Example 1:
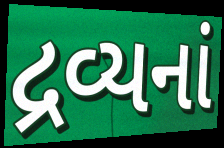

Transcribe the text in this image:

દ્રવ્યનાં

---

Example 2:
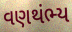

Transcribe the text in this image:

વણથંભ્ય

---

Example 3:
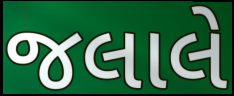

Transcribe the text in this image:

જલાલે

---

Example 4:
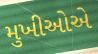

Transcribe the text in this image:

મુખીઓએ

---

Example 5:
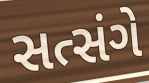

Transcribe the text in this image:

સત્સંગે